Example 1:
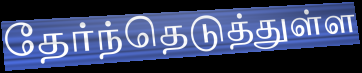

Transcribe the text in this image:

தேர்ந்தெடுத்துள்ள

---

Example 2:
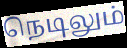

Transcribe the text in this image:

நெடிலும்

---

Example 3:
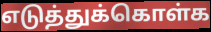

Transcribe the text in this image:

எடுத்துக்கொள்க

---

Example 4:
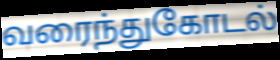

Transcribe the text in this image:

வரைந்துகோடல்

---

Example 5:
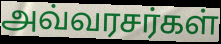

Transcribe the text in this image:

அவ்வரசர்கள்